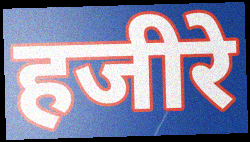
हजीरे